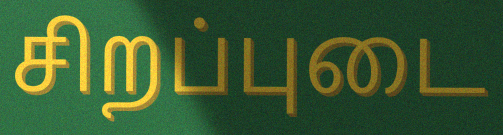
சிறப்புடை